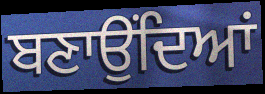
ਬਣਾਉਂਦਿਆਂ